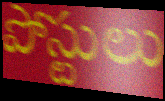
పోస్టులు